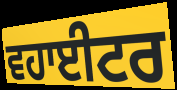
ਵਹਾਈਟਰ